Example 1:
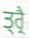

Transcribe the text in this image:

ਤ੍ਰ੍ਰੈ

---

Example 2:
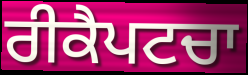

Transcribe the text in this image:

ਰੀਕੈਪਟਚਾ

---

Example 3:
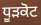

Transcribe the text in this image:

ਧੂੜਕੋਟ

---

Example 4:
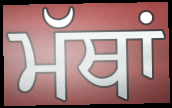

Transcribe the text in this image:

ਮੱਥਾਂ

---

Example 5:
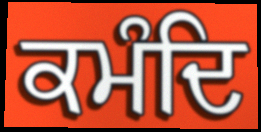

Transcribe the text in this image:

ਕਮੰਦਿ